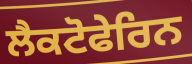
ਲੈਕਟੋਫੇਰਿਨ